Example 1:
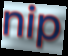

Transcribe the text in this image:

nip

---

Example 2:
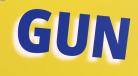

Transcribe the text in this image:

GUN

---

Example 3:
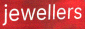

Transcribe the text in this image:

jewellers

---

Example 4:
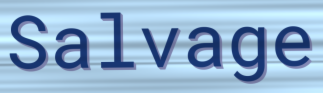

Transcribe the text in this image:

Salvage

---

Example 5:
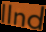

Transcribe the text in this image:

IInd